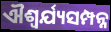
ଐଶ୍ୱର୍ଯ୍ୟସମ୍ପନ୍ନ